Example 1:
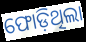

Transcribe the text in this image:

ଫୋଡ଼ିଥିଲା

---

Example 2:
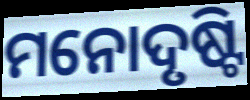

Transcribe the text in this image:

ମନୋଦୃଷ୍ଟି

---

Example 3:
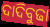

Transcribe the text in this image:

ଦାଦିବୁଢା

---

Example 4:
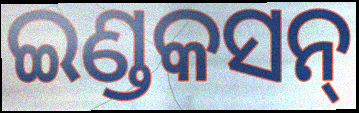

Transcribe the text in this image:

ଇଣ୍ଡକସନ୍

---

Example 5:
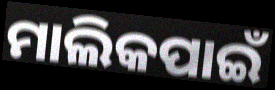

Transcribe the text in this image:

ମାଲିକପାଇଁ